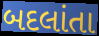
બદલાંતા